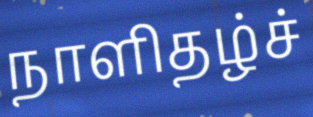
நாளிதழ்ச்